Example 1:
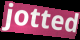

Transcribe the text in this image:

jotted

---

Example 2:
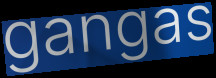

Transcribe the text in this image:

gangas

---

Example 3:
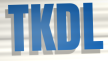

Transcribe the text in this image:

TKDL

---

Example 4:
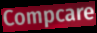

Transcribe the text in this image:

Compcare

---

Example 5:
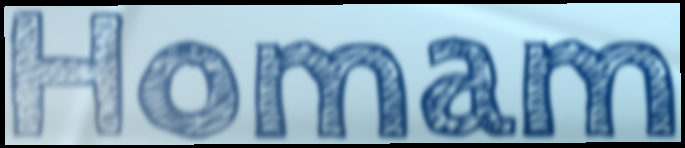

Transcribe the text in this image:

Homam